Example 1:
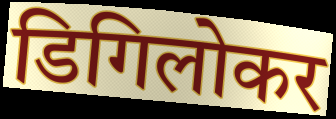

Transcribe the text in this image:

डिगिलोकर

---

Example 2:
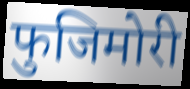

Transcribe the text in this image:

फुजिमोरी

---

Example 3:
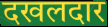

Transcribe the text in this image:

दखलदार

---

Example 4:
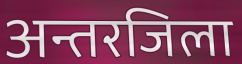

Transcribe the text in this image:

अन्तरजिला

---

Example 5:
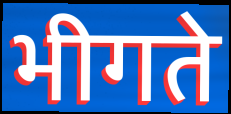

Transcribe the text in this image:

भीगते